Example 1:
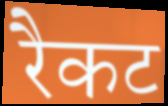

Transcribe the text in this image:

रैकट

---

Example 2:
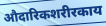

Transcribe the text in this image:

औदारिकशरीरकाय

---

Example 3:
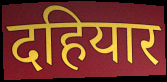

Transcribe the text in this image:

दहियार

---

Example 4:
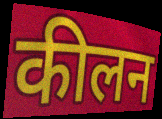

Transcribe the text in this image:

कीलन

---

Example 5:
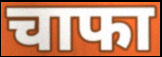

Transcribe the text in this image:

चाफा